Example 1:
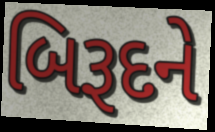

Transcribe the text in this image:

બિરૂદને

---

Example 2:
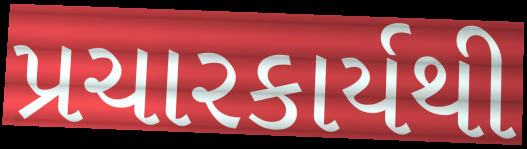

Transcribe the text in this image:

પ્રચારકાર્યથી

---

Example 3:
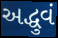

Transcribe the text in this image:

અદ્ધુવં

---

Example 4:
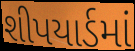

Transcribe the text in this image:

શીપયાર્ડમાં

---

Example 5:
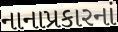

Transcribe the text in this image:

નાનાપ્રકારનાં